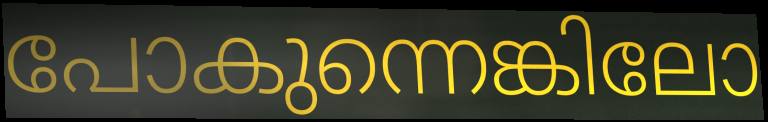
പോകുന്നെങ്കിലോ